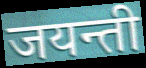
जयन्ती